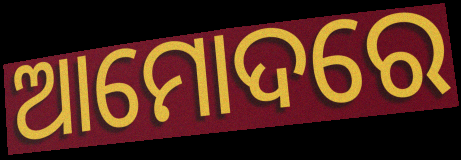
ଆମୋଦରେ